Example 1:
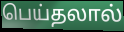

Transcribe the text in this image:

பெய்தலால்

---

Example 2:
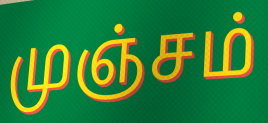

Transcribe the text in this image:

முஞ்சம்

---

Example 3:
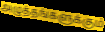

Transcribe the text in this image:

அழுத்தங்களுக்கும்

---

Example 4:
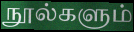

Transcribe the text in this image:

நூல்களும்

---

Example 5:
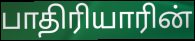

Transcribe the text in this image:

பாதிரியாரின்